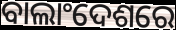
ବାଲାଂଦେଶରେ